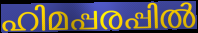
ഹിമപ്പരപ്പിൽ